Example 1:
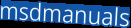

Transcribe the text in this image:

msdmanuals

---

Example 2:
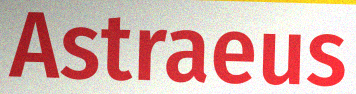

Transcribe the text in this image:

Astraeus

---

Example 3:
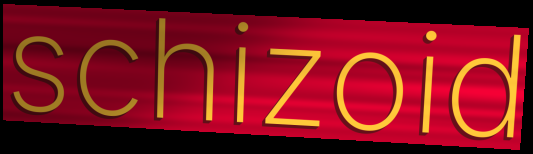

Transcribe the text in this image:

schizoid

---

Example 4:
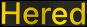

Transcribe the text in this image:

Hered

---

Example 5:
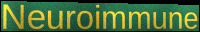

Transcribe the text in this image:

Neuroimmune